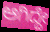
ಆಗಿದ್ದೇ